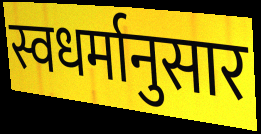
स्वधर्मानुसार